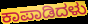
ಕಾಪಾಡಿದಳು